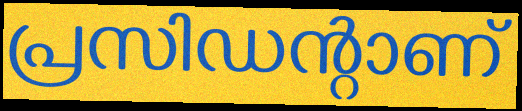
പ്രസിഡന്റാണ്